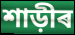
শাড়ীৰ